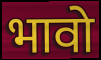
भावो